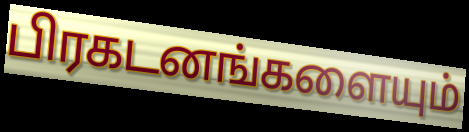
பிரகடனங்களையும்